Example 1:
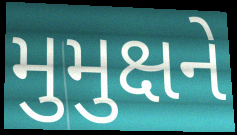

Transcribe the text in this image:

મુમુક્ષને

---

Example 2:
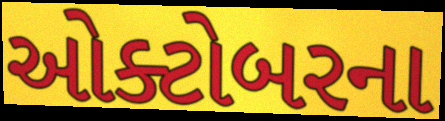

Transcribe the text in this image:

ઓક્ટોબરના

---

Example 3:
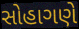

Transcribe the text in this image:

સોહાગણે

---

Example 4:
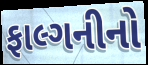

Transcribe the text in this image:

ફાલ્ગનીનો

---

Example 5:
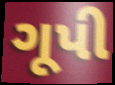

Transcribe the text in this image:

ગૂપી